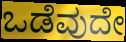
ಒಡೆವುದೇ